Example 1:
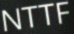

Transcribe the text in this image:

NTTF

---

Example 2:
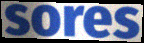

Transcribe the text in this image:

sores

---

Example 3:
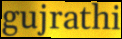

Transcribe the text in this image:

gujrathi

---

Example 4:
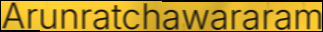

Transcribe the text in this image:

Arunratchawararam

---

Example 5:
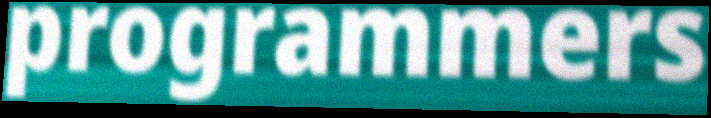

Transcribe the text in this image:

programmers